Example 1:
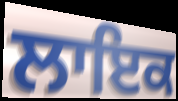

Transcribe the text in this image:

ਲਾਇਕ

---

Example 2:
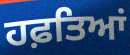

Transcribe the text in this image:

ਹਫ਼ਤਿਆਂ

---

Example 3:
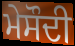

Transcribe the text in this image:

ਮੇਸੌਦੀ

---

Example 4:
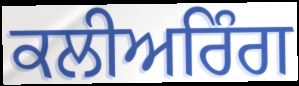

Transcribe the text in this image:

ਕਲੀਅਰਿੰਗ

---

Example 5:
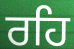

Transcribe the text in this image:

ਰਹਿ